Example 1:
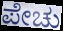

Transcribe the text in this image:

ಪೇಚು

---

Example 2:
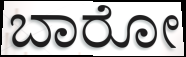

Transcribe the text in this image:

ಬಾರೋ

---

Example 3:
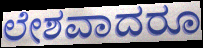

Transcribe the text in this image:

ಲೇಶವಾದರೂ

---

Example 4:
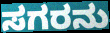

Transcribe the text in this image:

ಸಗರನು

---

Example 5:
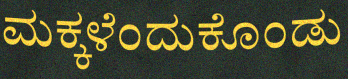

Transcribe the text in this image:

ಮಕ್ಕಳೆಂದುಕೊಂಡು